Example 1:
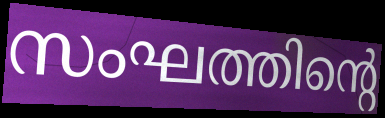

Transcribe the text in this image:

സംഘത്തിന്റെ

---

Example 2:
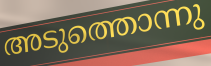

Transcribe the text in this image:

അടുത്തൊന്നു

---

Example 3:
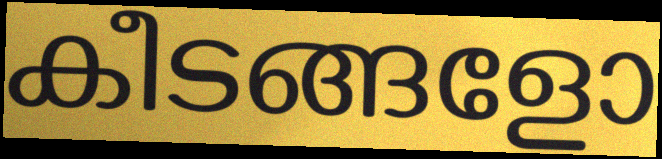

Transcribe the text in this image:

കീടങ്ങളോ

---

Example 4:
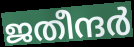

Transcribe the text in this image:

ജതീന്ദർ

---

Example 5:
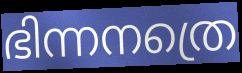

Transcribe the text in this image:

ഭിന്നനത്രെ